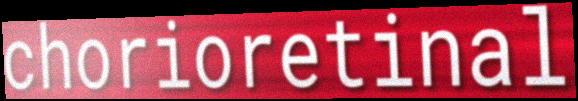
chorioretinal